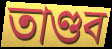
তাণ্ডব